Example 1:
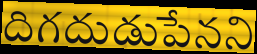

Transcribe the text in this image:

దిగదుడుపేనని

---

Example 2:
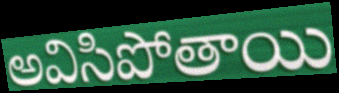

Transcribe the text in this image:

అవిసిపోతాయి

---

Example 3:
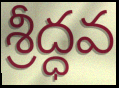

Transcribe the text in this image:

శ్రీద్ధవ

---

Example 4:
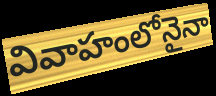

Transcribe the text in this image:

వివాహంలోనైనా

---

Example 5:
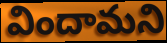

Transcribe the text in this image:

విందామని